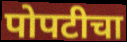
पोपटीचा